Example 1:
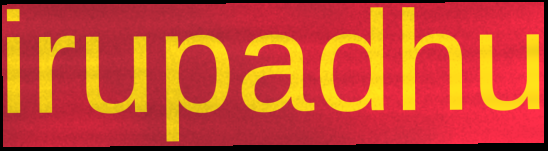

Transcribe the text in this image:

irupadhu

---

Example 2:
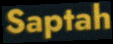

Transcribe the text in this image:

Saptah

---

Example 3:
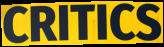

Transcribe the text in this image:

CRITICS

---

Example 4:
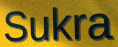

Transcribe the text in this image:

Sukra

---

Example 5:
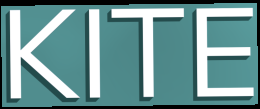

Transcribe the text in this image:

KITE